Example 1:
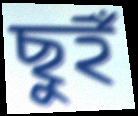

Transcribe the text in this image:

ছুইঁ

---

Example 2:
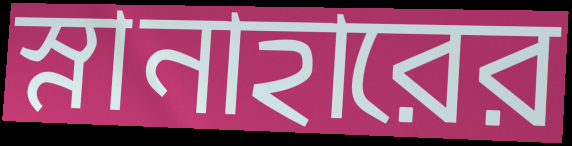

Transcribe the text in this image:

স্নানাহারের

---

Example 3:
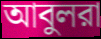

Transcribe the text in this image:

আবুলরা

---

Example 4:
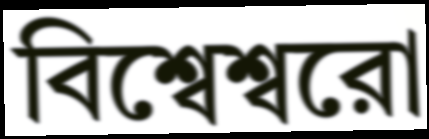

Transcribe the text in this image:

বিশ্বেশ্বরো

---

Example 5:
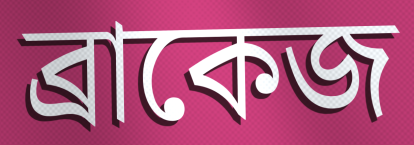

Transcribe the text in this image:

ব্রাকেজ